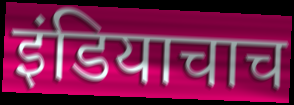
इंडियाचाच